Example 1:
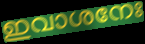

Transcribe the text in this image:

ഇവാശനേഃ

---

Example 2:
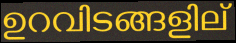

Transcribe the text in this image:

ഉറവിടങ്ങളില്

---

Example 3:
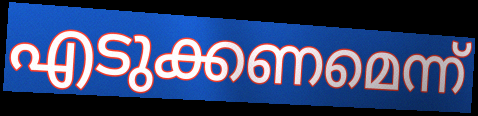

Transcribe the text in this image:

എടുക്കണമെന്ന്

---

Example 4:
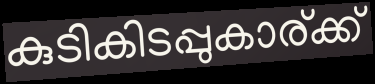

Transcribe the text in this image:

കുടികിടപ്പുകാര്ക്ക്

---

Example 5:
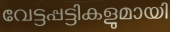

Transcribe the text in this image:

വേട്ടപ്പട്ടികളുമായി